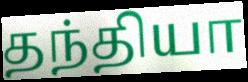
தந்தியா